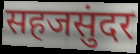
सहजसुंदर